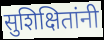
सुशिक्षितांनी